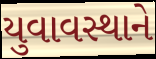
યુવાવસ્થાને